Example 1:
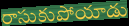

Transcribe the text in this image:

రాసుకుపోయాడు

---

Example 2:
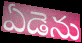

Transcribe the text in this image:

ఏడెను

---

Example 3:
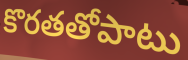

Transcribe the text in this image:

కొరతతోపాటు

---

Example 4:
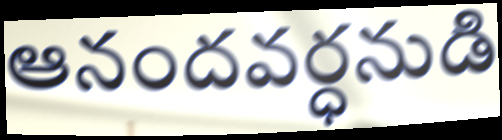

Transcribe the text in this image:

ఆనందవర్ధనుడి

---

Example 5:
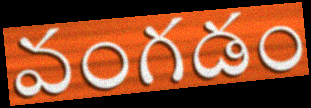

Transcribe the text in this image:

వంగడం